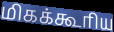
மிகக்கூரிய